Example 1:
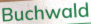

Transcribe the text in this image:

Buchwald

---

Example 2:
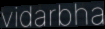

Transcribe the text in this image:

vidarbha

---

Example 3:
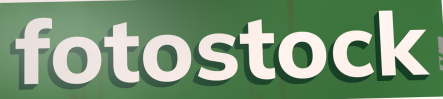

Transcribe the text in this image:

fotostock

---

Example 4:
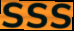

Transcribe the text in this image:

sss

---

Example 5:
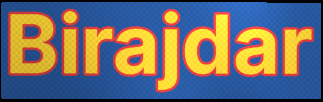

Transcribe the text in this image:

Birajdar